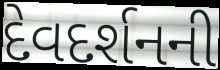
દેવદર્શનની